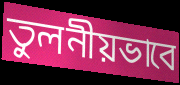
তুলনীয়ভাবে